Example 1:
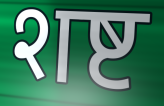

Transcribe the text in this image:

शष्ट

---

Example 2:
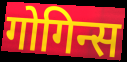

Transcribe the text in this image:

गोगिन्स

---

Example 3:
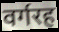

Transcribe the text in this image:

वर्गरह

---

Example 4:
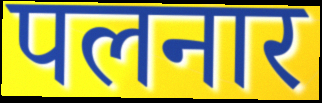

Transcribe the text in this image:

पलनार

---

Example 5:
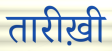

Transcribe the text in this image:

तारीख़ी